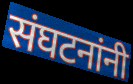
संघटनांनी